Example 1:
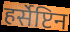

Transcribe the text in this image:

हर्सेप्टिन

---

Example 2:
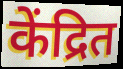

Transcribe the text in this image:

केंद्रित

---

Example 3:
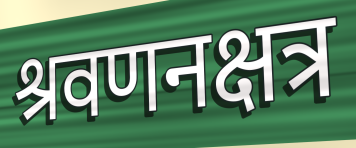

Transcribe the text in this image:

श्रवणनक्षत्र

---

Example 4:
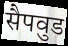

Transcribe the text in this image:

सैपवुड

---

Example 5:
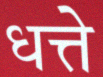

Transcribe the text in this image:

धत्ते